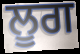
ਲੂਗ